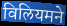
विलियमने